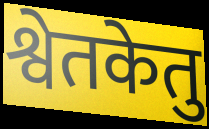
श्वेतकेतु